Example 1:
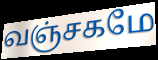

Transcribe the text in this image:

வஞ்சகமே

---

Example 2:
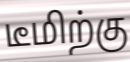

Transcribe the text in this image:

டீமிற்கு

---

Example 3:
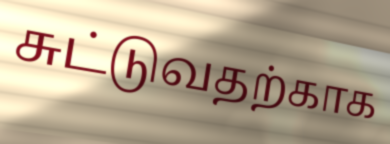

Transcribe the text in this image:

சுட்டுவதற்காக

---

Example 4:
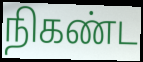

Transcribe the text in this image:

நிகண்ட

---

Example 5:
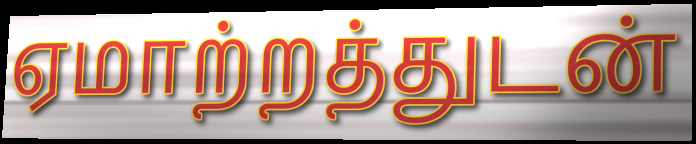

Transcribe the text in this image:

ஏமாற்றத்துடன்